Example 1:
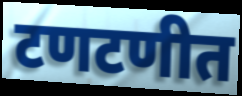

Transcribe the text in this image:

टणटणीत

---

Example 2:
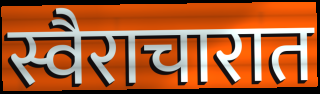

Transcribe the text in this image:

स्वैराचारात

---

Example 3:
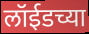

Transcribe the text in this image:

लॉईडच्या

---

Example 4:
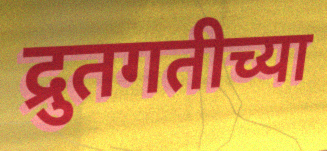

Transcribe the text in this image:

द्रुतगतीच्या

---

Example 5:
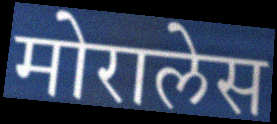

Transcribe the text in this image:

मोरालेस